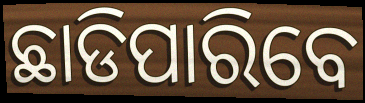
ଛାଡିପାରିବେ